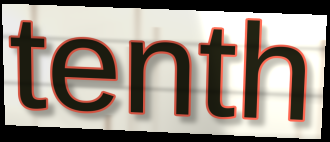
tenth